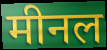
मीनल